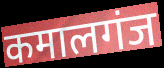
कमालगंज